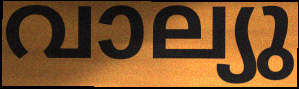
വാല്യു